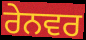
ਰੇਨਵਰ